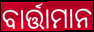
ବାର୍ତ୍ତାମାନ